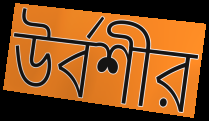
উর্বশীর